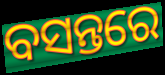
ବସନ୍ତରେ